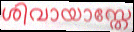
ശിവായാസ്തേ